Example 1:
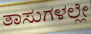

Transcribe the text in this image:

ತಾಸುಗಳಲ್ಲೇ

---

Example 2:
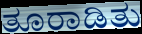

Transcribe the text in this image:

ತೂರಾಡಿತು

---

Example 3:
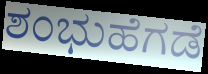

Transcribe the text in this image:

ಶಂಭುಹೆಗಡೆ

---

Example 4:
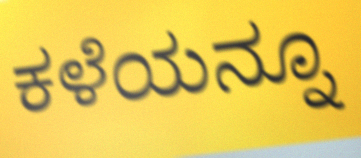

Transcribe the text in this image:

ಕಳೆಯನ್ನೂ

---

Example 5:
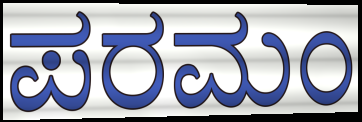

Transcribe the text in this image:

ಪರಮಂ